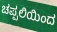
ಚಪ್ಪಲಿಯಿಂದ